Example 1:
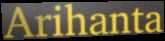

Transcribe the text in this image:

Arihanta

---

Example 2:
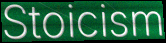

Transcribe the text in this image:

Stoicism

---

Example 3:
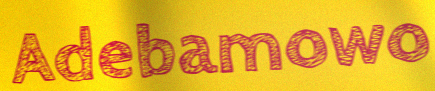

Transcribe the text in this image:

Adebamowo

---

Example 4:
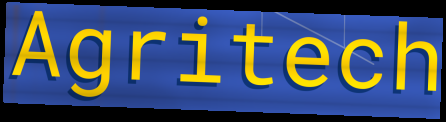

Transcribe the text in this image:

Agritech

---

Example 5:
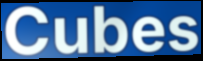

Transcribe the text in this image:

Cubes